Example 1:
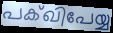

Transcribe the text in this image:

പക്ഖിപേയ്യ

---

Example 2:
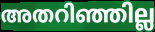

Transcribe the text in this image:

അതറിഞ്ഞില്ല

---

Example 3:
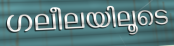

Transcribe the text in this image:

ഗലീലയിലൂടെ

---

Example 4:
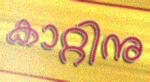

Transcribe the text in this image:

കാറ്റിനു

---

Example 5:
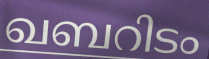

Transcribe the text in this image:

ഖബറിടം